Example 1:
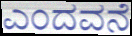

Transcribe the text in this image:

ಎಂದವನೆ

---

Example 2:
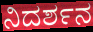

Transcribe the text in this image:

ನಿದರ್ಶನ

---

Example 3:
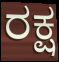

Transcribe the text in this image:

ರಕ್ಷ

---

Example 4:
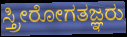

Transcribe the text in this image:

ಸ್ತ್ರೀರೋಗತಜ್ಞರು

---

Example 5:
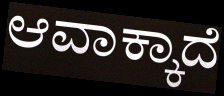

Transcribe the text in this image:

ಆವಾಕ್ಕಾದೆ